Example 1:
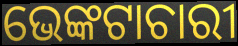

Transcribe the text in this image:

ଭେଙ୍କଟାଚାରୀ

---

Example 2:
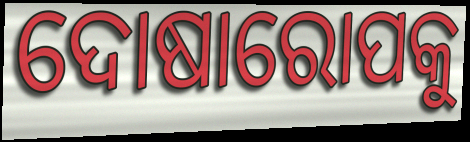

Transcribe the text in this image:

ଦୋଷାରୋପକୁ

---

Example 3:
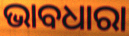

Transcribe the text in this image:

ଭାବଧାରା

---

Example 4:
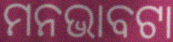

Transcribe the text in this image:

ମନଭାବଟା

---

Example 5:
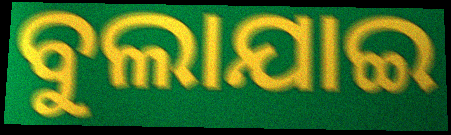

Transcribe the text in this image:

ବୁଲାଯାଇ